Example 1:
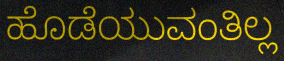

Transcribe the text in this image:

ಹೊಡೆಯುವಂತಿಲ್ಲ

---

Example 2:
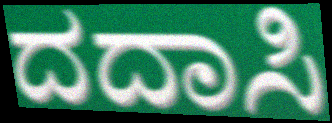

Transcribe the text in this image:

ದದಾಸಿ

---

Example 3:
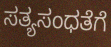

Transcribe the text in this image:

ಸತ್ಯಸಂಧತೆಗೆ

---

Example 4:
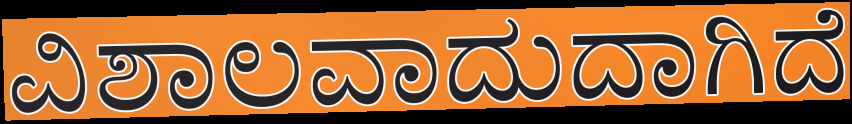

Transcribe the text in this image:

ವಿಶಾಲವಾದುದಾಗಿದೆ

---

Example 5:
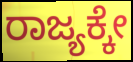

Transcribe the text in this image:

ರಾಜ್ಯಕ್ಕೇ